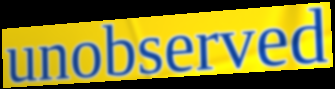
unobserved